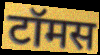
टॉमस